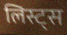
लिस्ट्स